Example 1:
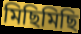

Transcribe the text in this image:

মিছিমিছি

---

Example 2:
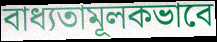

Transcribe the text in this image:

বাধ্যতামূলকভাবে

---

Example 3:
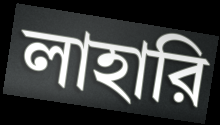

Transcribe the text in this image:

লাহারি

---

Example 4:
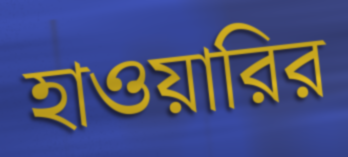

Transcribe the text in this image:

হাওয়ারির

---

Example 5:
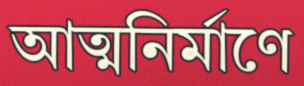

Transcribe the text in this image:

আত্মনির্মাণে